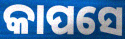
କାପସେ